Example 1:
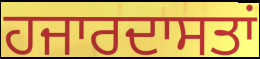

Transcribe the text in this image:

ਹਜਾਰਦਾਸਤਾਂ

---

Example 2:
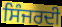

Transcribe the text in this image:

ਸਿੰਜਰਦੀ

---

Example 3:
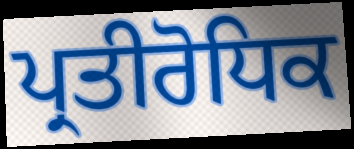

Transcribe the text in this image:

ਪ੍ਰਤੀਰੋਧਿਕ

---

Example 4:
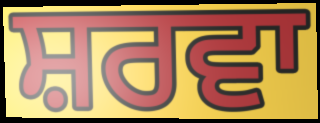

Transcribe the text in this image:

ਸ਼ਰਵਾ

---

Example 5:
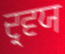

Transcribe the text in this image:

ਦ੍ਰਵਯ